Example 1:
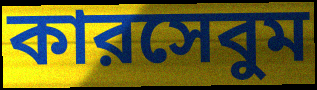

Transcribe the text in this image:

কারসেবুম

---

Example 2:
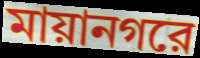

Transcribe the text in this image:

মায়ানগরে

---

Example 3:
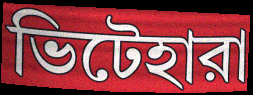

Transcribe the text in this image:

ভিটেহারা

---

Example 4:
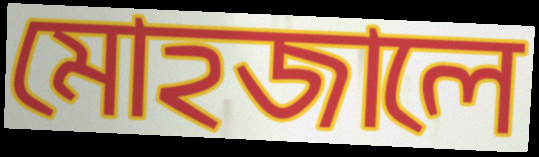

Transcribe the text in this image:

মোহজালে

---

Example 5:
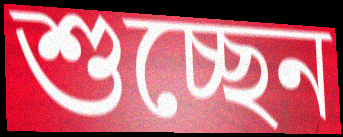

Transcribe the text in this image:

শুচ্ছেন